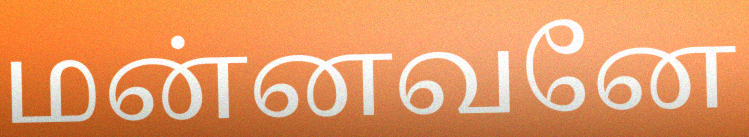
மன்னவனே